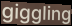
giggling